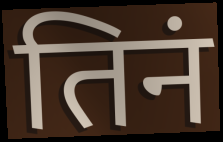
तिनं